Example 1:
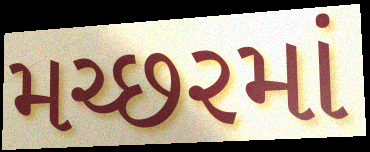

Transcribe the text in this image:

મચ્છરમાં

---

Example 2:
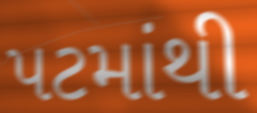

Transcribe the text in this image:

પટમાંથી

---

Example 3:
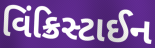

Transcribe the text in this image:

વિંક્રિસ્ટાઈન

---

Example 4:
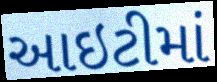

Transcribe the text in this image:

આઇટીમાં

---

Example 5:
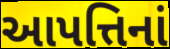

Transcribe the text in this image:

આપત્તિનાં